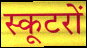
स्कूटरों